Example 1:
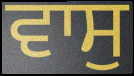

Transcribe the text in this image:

ਵਾਸੁ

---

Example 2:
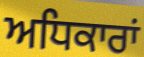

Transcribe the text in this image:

ਅਧਿਕਾਰਾਂ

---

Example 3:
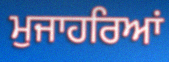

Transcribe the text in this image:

ਮੁਜਾਹਰਿਆਂ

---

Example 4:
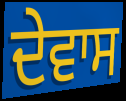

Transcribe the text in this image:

ਦੇਵਾਸ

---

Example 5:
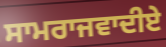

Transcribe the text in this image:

ਸਾਮਰਾਜਵਾਦੀਏ